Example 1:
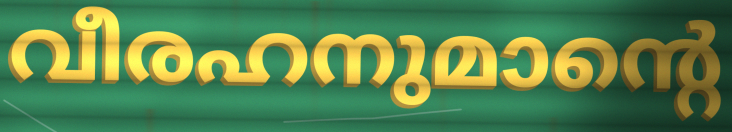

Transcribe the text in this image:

വീരഹനുമാന്റെ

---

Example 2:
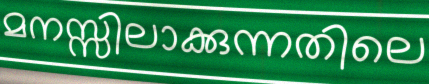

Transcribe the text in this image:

മനസ്സിലാക്കുന്നതിലെ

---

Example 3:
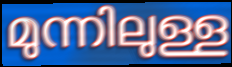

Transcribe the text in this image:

മുന്നിലുള്ള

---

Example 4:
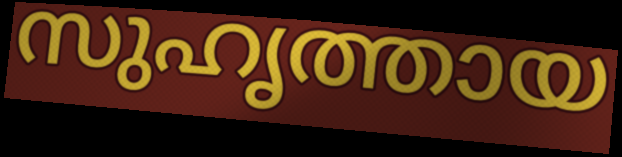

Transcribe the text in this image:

സുഹൃത്തായ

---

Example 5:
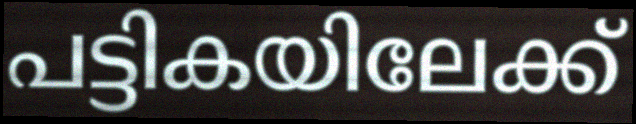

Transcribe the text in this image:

പട്ടികയിലേക്ക്